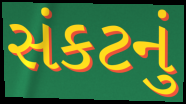
સંકટનું